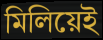
মিলিয়েই